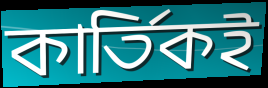
কার্তিকই